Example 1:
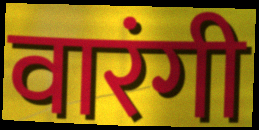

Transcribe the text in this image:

वारंगी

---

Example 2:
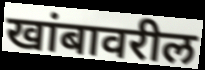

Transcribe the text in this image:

खांबावरील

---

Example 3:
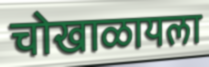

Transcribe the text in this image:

चोखाळायला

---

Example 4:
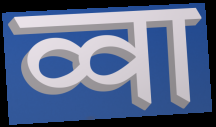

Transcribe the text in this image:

व्वा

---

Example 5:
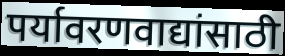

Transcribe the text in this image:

पर्यावरणवाद्यांसाठी